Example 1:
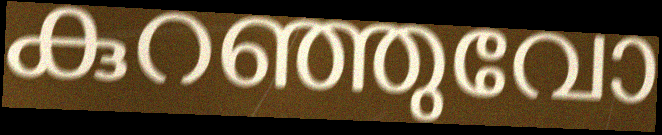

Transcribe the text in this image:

കുറഞ്ഞുവോ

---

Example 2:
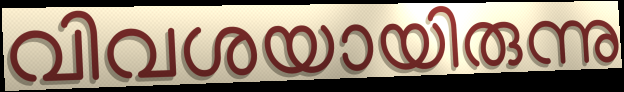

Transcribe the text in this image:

വിവശയായിരുന്നു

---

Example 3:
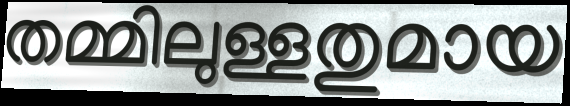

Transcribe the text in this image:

തമ്മിലുള്ളതുമായ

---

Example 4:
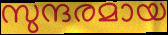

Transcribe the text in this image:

സുന്ദരമായ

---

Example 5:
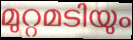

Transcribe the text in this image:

മുറ്റമടിയും